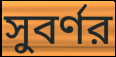
সুবর্ণর